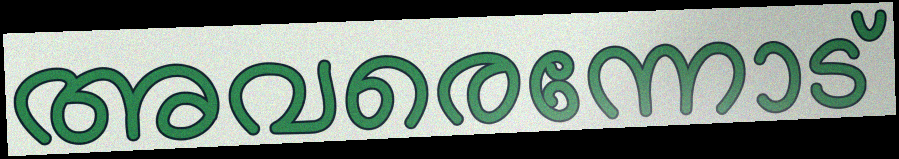
അവരെന്നോട്